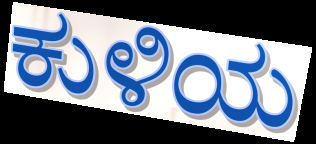
ಕುಳಿಯ